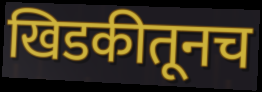
खिडकीतूनच